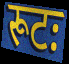
रूटः